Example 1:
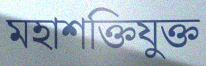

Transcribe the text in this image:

মহাশক্তিযুক্ত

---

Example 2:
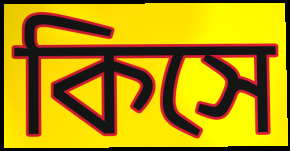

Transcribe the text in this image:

কিসে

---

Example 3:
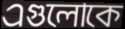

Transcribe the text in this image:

এগুলোকে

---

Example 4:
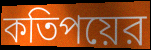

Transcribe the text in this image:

কতিপয়ের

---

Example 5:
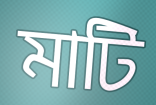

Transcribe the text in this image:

মাটি